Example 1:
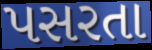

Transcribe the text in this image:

પસરતા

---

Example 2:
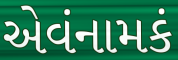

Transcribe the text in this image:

એવંનામકં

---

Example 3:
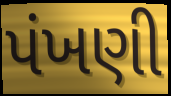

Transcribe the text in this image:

પંખણી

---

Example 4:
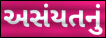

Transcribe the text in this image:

અસંયતનું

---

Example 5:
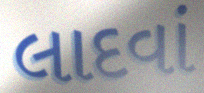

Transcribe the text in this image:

લાદવાં